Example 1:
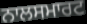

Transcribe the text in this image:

ਨਾਲਸਮਾਰਟ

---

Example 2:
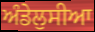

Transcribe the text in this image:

ਅੰਡੇਲੁਸੀਆ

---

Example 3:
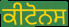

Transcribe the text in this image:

ਕੀਟੋਨਸ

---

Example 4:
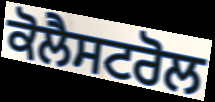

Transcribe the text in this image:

ਕੋਲੈਸਟਰੋਲ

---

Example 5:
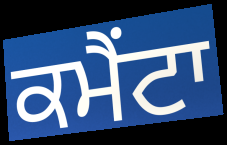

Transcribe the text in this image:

ਕਮੈਂਟਾ